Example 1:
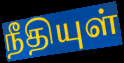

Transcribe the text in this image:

நீதியுள்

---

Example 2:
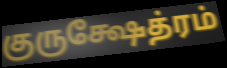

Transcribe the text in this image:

குருக்ஷேத்ரம்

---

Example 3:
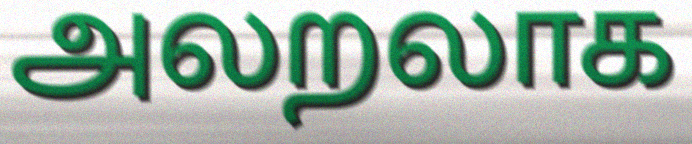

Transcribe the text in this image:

அலறலாக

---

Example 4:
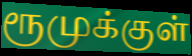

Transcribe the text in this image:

ரூமுக்குள்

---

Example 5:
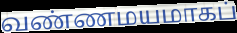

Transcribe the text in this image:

வண்ணமயமாகப்